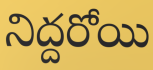
నిద్దరోయి